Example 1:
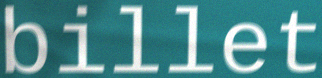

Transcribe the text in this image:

billet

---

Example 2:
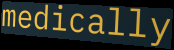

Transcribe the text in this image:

medically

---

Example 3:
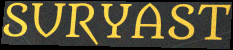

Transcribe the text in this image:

SURYAST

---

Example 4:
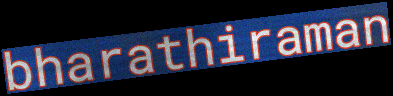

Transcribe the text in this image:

bharathiraman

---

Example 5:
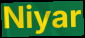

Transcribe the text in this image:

Niyar